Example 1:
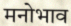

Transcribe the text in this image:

मनोभाव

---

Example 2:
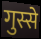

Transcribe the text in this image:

गुस्‍से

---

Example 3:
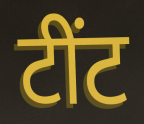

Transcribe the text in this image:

टींट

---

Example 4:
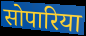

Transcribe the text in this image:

सोपारिया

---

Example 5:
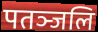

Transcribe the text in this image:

पतञ्जलि